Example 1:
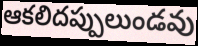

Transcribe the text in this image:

ఆకలిదప్పులుండవు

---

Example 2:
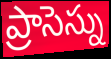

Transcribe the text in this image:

ప్రాసెస్ను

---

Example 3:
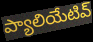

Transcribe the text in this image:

ప్యాలియేటివ్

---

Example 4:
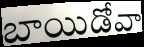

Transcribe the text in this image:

బాయిడోవా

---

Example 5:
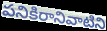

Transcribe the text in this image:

పనికిరానివాటిని